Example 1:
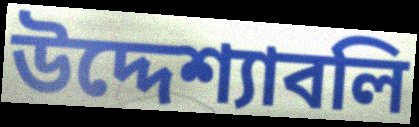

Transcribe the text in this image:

উদ্দেশ্যাবলি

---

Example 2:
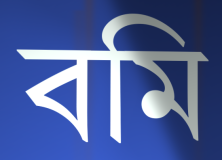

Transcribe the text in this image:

বমি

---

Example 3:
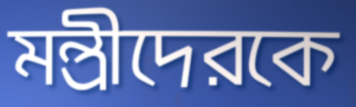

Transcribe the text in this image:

মন্ত্রীদেরকে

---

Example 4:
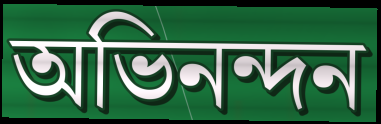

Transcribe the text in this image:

অভিনন্দন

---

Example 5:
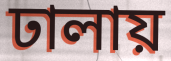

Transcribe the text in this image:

ঢালায়